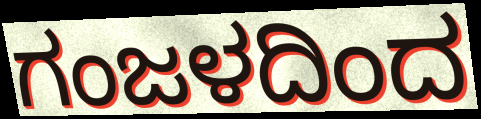
ಗಂಜಳದಿಂದ